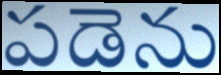
పడెను